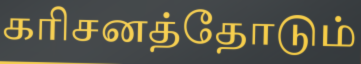
கரிசனத்தோடும்